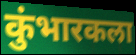
कुंभारकला